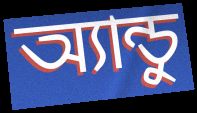
অ্যান্ডু